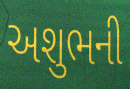
અશુભની